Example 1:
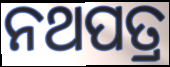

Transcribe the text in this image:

ନଥପତ୍ର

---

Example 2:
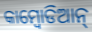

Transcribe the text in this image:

କାମ୍ବୋଡିଆନ୍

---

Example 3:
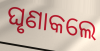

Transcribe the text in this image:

ଘୃଣାକଲେ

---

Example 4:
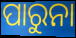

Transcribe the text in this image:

ପାରୁନା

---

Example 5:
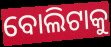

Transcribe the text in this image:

ବୋଲିଟାକୁ